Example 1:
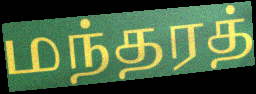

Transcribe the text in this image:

மந்தரத்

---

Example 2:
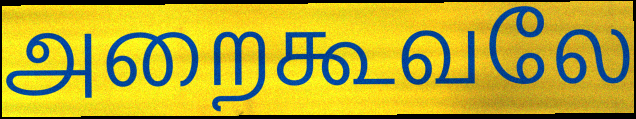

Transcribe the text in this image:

அறைகூவலே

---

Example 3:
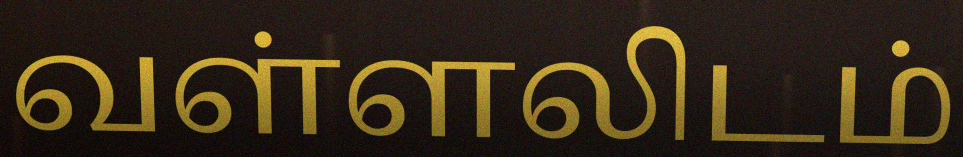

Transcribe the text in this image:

வள்ளலிடம்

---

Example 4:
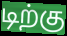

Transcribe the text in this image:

டிற்கு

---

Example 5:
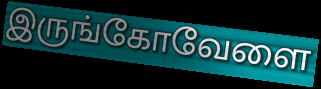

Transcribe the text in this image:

இருங்கோவேளை